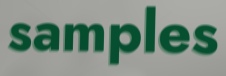
samples